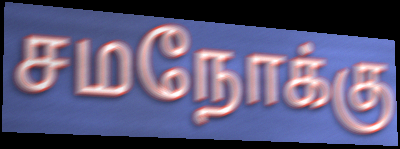
சமநோக்கு